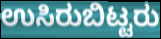
ಉಸಿರುಬಿಟ್ಟರು